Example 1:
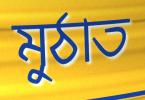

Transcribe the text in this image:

মুঠাত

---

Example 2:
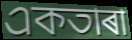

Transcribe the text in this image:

একতাৰা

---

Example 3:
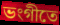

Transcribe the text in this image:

ভংগীতে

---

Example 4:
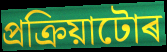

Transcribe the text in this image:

প্ৰক্ৰিয়াটোৰ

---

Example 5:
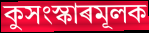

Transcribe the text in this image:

কুসংস্কাৰমূলক